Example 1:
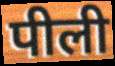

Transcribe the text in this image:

पीली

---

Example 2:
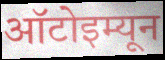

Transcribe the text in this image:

ऑटोइम्यून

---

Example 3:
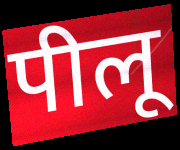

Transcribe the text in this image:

पीलू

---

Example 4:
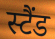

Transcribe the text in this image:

स्टैंड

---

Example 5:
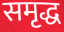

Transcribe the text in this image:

समृद्ध